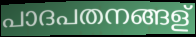
പാദപതനങ്ങള്